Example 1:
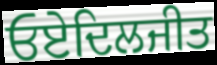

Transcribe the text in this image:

ਓਏਦਿਲਜੀਤ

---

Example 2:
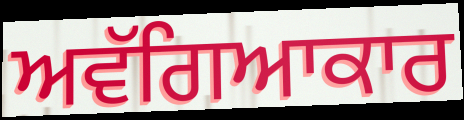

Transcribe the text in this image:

ਅਵੱਗਿਆਕਾਰ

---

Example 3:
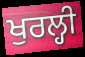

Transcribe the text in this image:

ਖੁਰਲ੍ਹੀ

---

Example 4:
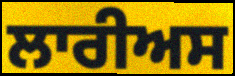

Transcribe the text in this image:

ਲਾਰੀਅਸ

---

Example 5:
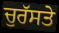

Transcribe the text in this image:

ਚੁਰੱਸਤੇ